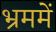
भ्रममें